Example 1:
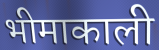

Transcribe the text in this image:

भीमाकाली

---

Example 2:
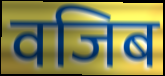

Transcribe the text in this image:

वजिब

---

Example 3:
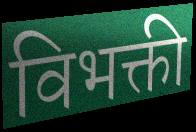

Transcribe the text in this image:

विभक्ती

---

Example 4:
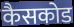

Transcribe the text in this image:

कैसकोड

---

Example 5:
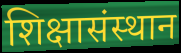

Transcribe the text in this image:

शिक्षासंस्थान